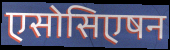
एसोसिएषन